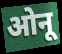
ओनू